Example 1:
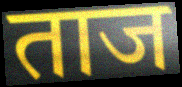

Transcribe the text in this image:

ताज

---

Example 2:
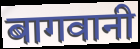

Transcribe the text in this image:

बागवानी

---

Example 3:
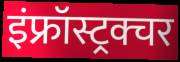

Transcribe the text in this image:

इंफ्रॉस्ट्रक्चर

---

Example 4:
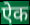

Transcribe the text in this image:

ऐक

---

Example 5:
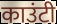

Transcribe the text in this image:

काउंटी